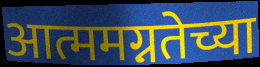
आत्ममग्नतेच्या